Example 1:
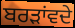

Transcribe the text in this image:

ਬਰੜਾਂਵਦੇ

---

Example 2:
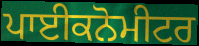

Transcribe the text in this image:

ਪਾਈਕਨੋਮੀਟਰ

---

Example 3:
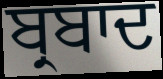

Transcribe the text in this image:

ਬ੍ਰਬਾਦ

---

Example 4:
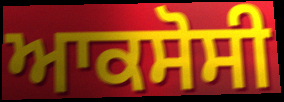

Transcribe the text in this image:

ਆਕਸੋਸੀ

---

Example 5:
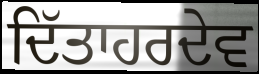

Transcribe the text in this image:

ਦਿੱਤਾਹਰਦੇਵ